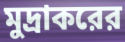
মুদ্রাকরের